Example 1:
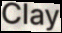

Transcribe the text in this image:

Clay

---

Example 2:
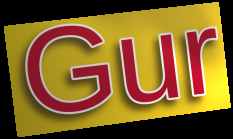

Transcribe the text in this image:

Gur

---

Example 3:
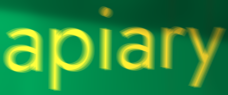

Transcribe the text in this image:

apiary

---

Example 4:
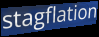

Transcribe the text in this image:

stagflation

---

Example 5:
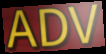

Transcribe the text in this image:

ADV